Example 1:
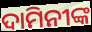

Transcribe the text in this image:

ଦାମିନୀଙ୍କ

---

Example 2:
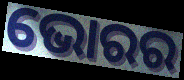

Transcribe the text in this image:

ଭୋରର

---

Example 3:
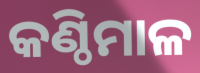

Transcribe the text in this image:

କଣ୍ଠିମାଳ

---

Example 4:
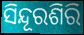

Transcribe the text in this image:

ସିନ୍ଦୂରଶିରି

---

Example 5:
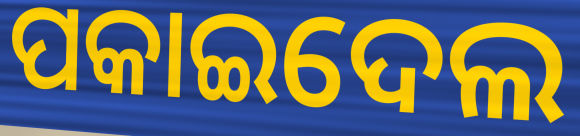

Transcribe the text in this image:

ପକାଇଦେଲ